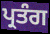
ਪ੍ਰਤੰਗ